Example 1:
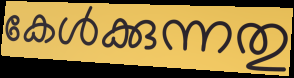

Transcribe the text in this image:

കേൾക്കുന്നതു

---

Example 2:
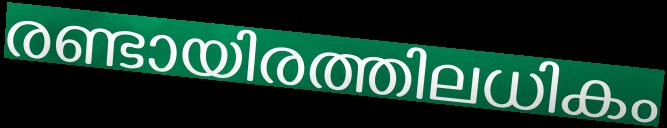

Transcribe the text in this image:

രണ്ടായിരത്തിലധികം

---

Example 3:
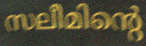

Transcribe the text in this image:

സലീമിന്റെ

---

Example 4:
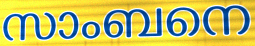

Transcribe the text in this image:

സാംബനെ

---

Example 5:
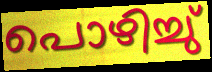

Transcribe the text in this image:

പൊഴിച്ചു്